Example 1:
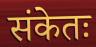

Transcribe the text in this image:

संकेतः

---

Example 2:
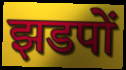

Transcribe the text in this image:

झडपों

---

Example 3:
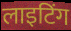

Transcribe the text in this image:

लाइटिंग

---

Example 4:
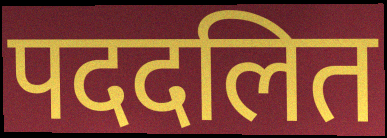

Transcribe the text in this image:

पददलित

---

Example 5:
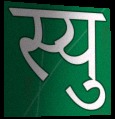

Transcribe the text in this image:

स्यु